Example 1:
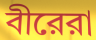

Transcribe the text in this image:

বীরেরা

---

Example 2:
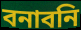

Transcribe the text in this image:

বনাবনি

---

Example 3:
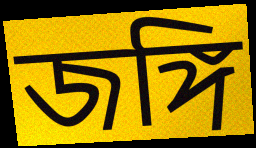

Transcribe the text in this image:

জঙ্গি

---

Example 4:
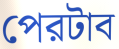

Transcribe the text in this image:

পেরটাব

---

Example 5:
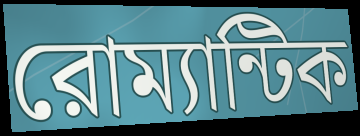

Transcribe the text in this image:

রোম্যান্টিক